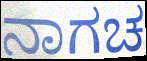
ನಾಗಚ